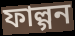
ফাল্গন